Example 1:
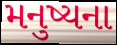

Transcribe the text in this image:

મનુષ્યના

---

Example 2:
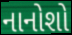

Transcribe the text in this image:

નાનોશો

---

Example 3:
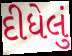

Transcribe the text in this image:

દીધેલું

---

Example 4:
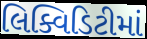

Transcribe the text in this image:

લિક્વિડિટીમાં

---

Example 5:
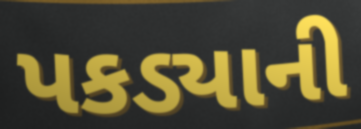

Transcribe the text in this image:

પકડ્યાની